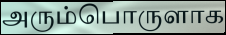
அரும்பொருளாக